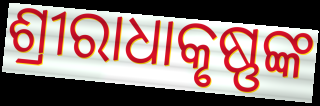
ଶ୍ରୀରାଧାକୃଷ୍ଣଙ୍କ